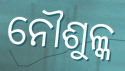
ନୌଶୁଳ୍କ